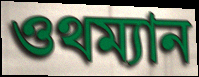
ওথম্যান